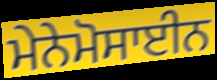
ਮੇਨੇਮੋਸਾਈਨ